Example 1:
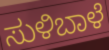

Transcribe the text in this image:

ಸುಳಿಬಾಳೆ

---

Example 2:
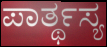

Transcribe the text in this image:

ಪಾರ್ತ್ಥಸ್ಯ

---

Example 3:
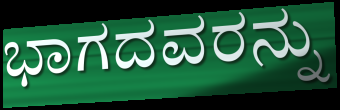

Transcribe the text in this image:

ಭಾಗದವರನ್ನು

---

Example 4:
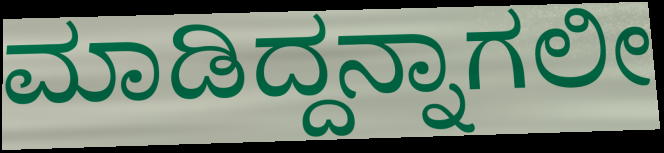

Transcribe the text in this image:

ಮಾಡಿದ್ದನ್ನಾಗಲೀ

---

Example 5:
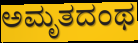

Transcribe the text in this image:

ಅಮೃತದಂಥ